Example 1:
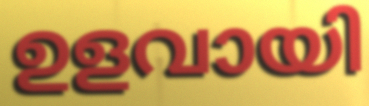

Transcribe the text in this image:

ഉളവായി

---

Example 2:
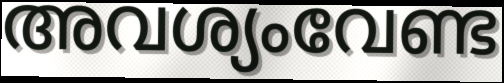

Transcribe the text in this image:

അവശ്യംവേണ്ട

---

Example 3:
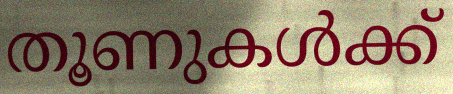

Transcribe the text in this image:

തൂണുകൾക്ക്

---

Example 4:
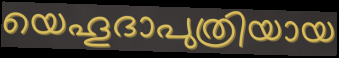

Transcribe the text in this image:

യെഹൂദാപുത്രിയായ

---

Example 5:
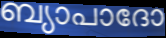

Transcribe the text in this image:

ബ്യാപാദോ